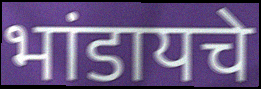
भांडायचे